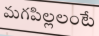
మగపిల్లలంటే